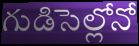
గుడిసెల్లోనో